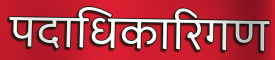
पदाधिकारिगण